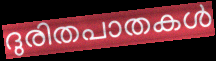
ദുരിതപാതകൾ